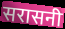
सरासनी